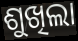
ଶୁଖିଲା